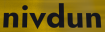
nivdun